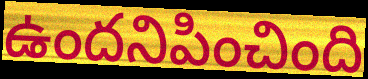
ఉందనిపించింది